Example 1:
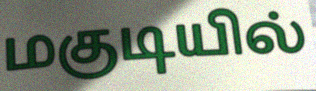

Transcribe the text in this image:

மகுடியில்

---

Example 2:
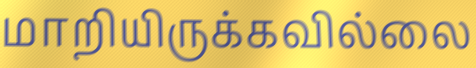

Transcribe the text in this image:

மாறியிருக்கவில்லை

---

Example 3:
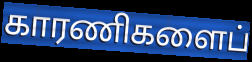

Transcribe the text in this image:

காரணிகளைப்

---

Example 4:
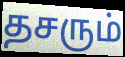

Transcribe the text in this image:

தசரும்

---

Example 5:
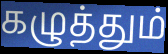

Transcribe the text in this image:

கழுத்தும்